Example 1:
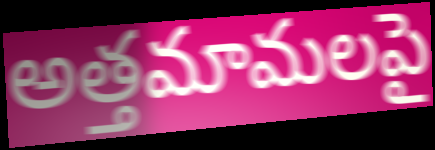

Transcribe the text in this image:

అత్తమామలపై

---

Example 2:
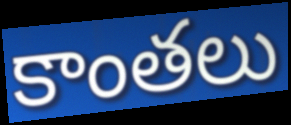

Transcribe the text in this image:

కాంతలు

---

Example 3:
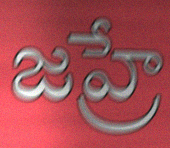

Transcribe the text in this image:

జహ్రే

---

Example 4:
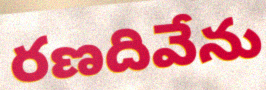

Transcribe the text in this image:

రణదివేను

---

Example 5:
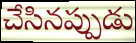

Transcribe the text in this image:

చేసినప్పుడు